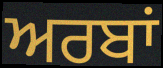
ਅਰਬਾਂ